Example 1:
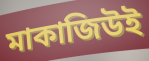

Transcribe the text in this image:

মাকাজিউই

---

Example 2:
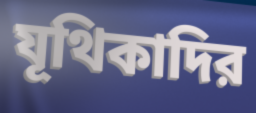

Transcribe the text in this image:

যূথিকাদির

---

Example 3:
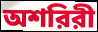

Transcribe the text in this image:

অশরিরী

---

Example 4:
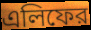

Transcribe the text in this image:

এলিফের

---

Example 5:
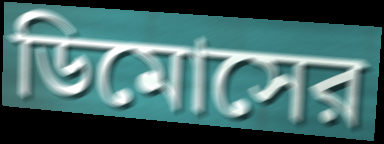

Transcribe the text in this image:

ডিমোসের